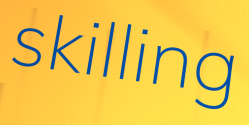
skilling